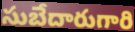
సుబేదారుగారి